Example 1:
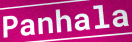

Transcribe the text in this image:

Panhala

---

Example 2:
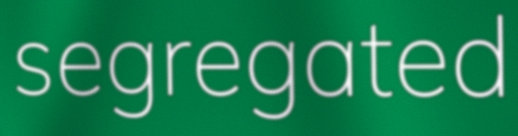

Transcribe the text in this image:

segregated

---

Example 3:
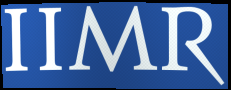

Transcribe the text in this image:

IIMR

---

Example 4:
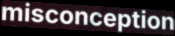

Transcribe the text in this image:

misconception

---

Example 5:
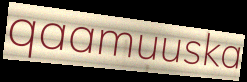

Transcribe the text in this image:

qaamuuska